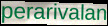
perarivalan